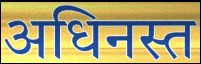
अधिनस्त